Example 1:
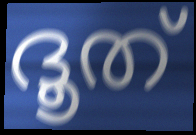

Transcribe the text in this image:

ദൂത്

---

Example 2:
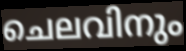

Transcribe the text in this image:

ചെലവിനും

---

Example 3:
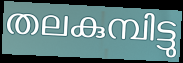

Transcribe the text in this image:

തലകുമ്പിട്ടു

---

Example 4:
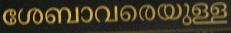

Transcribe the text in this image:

ശേബാവരെയുള്ള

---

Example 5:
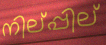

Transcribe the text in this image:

നില്പ്പില്